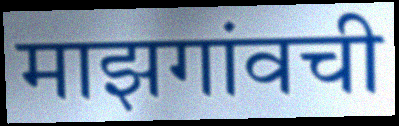
माझगांवची